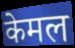
केमल